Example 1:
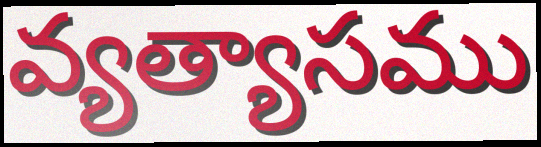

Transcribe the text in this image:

వ్యత్యాసము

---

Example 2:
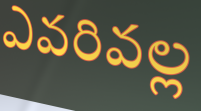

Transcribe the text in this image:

ఎవరివల్ల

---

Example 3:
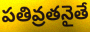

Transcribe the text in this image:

పతివ్రతనైతే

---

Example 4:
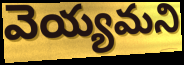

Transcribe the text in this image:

వెయ్యమని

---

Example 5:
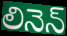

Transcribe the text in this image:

లినెన్